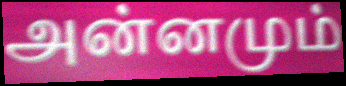
அன்னமும்